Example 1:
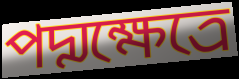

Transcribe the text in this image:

পদ্মক্ষেত্রে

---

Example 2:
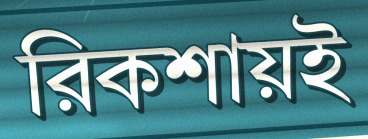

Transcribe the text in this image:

রিকশায়ই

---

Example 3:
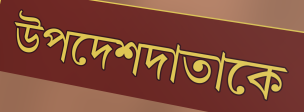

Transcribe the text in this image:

উপদেশদাতাকে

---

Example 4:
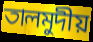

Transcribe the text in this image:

তালমুদীয়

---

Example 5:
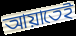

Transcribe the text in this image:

আয়াতেই